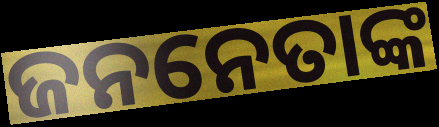
ଜନନେତାଙ୍କ